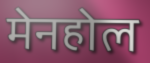
मेनहोल